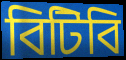
বিটিবি